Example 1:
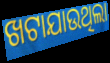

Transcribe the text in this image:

ଖଟାଯାଉଥିଲା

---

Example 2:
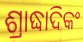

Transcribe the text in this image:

ଶ୍ରାଦ୍ଧାଦିକଂ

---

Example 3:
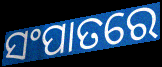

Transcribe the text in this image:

ସଂପାତରେ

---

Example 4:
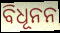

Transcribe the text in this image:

ବିଧୂନନ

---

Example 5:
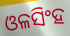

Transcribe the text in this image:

ଓଳସିଂହ